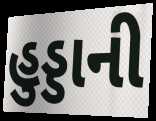
હુડ્ડાની